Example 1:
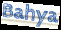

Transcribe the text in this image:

Bahya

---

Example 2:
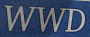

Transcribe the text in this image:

WWD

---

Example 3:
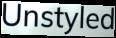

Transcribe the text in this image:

Unstyled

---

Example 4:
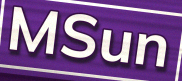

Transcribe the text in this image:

MSun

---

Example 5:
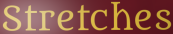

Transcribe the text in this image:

Stretches